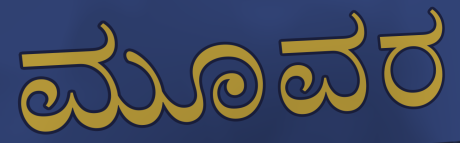
ಮೂವರ